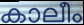
കാലീം